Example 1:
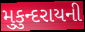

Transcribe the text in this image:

મુકુન્દરાયની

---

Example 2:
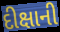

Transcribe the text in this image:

દીક્ષાની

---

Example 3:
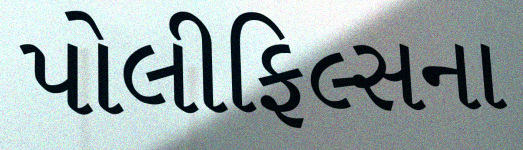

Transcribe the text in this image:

પોલીફિલ્સના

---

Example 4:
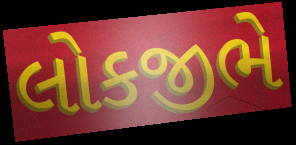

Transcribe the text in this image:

લોકજીભે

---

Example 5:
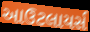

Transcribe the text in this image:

આઉટલાયર્સ